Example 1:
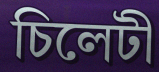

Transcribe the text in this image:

চিলেটী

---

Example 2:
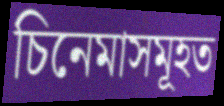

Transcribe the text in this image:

চিনেমাসমূহত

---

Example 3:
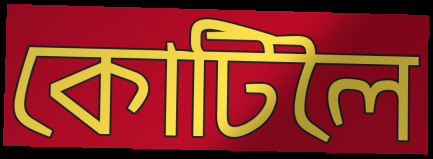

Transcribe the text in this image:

কোটিলৈ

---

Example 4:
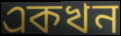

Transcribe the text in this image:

একখন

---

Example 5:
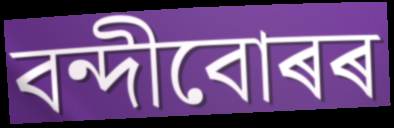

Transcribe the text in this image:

বন্দীবোৰৰ